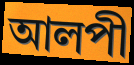
আলপী